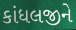
કાંધલજીને